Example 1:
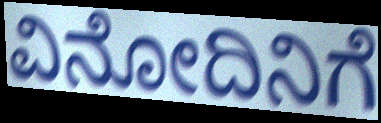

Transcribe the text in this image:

ವಿನೋದಿನಿಗೆ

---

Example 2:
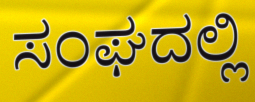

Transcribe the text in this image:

ಸಂಘದಲ್ಲಿ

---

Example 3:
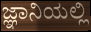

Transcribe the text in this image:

ಜ್ಞಾನಿಯಲ್ಲಿ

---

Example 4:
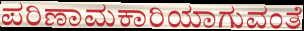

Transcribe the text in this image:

ಪರಿಣಾಮಕಾರಿಯಾಗುವಂತೆ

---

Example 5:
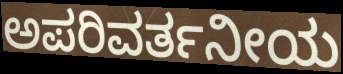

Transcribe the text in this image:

ಅಪರಿವರ್ತನೀಯ